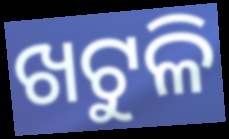
ଖଟୁଳି